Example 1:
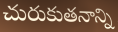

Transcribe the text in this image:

చురుకుతనాన్ని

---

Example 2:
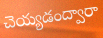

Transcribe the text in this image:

చెయ్యడంద్వారా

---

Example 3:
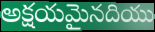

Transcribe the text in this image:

అక్షయమైనదియు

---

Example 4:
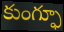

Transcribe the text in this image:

కుంగ్ఫూ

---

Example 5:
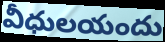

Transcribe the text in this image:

వీధులయందు